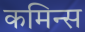
कमिन्स